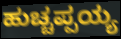
ಹುಚ್ಚಪ್ಪಯ್ಯ